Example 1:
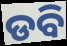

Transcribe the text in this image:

ଡବି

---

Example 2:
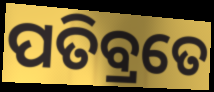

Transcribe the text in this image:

ପତିବ୍ରତେ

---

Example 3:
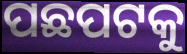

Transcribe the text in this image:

ପଛପଟକୁ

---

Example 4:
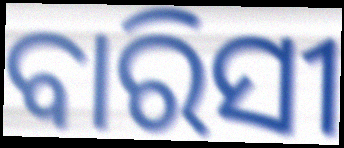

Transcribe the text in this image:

ବାରିସୀ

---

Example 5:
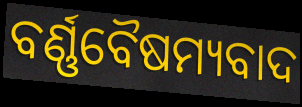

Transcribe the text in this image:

ବର୍ଣ୍ଣବୈଷମ୍ୟବାଦ